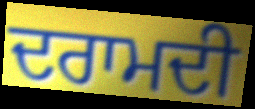
ਦਰਾਮਦੀ